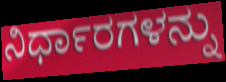
ನಿರ್ಧಾರಗಳನ್ನು